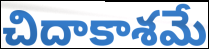
చిదాకాశమే